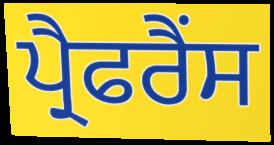
ਪ੍ਰੈਫਰੈਂਸ